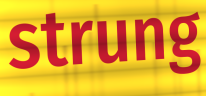
strung